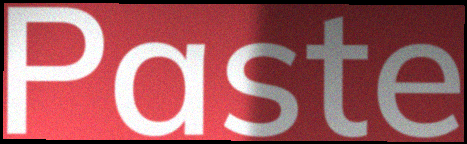
Paste